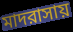
মাদরাসায়